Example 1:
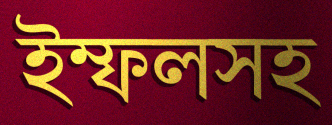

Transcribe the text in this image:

ইম্ফলসহ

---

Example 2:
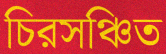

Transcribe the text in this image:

চিরসঞ্চিত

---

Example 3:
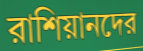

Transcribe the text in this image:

রাশিয়ানদের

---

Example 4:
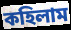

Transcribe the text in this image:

কহিলাম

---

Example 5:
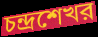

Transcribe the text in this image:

চন্দ্রশেখর